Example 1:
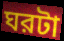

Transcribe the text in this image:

ঘরটা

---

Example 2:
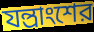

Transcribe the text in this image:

যন্ত্রাংশের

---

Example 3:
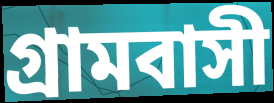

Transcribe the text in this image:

গ্রামবাসী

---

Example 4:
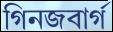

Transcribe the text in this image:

গিনজবার্গ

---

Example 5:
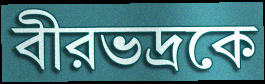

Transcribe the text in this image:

বীরভদ্রকে